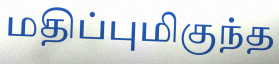
மதிப்புமிகுந்த